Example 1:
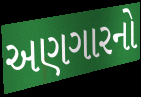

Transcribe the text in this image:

અણગારનો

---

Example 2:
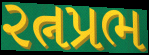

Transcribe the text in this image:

રત્નપ્રભ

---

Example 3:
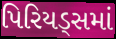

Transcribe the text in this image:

પિરિયડ્સમાં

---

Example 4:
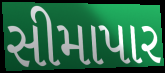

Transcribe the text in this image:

સીમાપાર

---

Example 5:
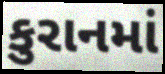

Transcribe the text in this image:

કુરાનમાં